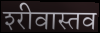
श्रीवास्तव